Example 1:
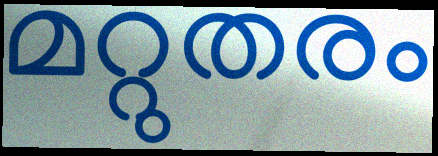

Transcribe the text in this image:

മറ്റുതരം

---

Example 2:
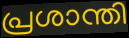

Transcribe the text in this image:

പ്രശാന്തി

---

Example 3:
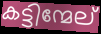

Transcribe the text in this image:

കട്ടിന്മേല്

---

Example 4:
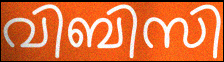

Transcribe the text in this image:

വിബിസി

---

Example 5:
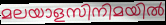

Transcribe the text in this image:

മലയാളസിനിമയിൽ